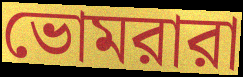
ভোমরারা